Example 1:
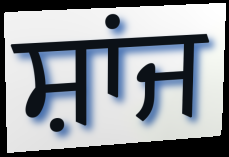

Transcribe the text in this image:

ਸ਼ਾਂਜ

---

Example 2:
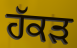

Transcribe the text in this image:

ਹੱਕੜ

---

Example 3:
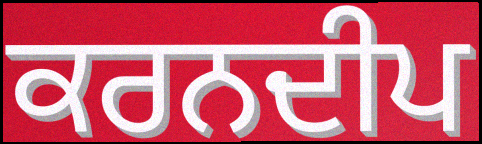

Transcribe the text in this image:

ਕਰਨਦੀਪ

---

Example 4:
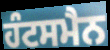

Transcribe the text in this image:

ਹੰਟਸਮੈਨ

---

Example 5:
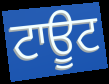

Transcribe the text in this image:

ਟਾਊਟ